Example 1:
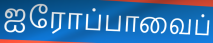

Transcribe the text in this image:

ஐரோப்பாவைப்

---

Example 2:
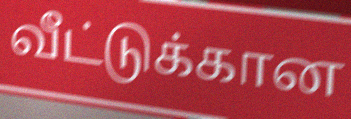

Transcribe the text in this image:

வீட்டுக்கான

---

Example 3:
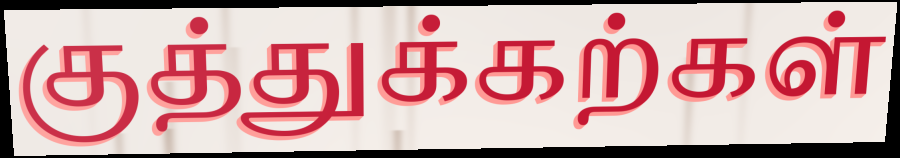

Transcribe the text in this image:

குத்துக்கற்கள்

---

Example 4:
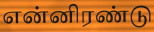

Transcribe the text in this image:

என்னிரண்டு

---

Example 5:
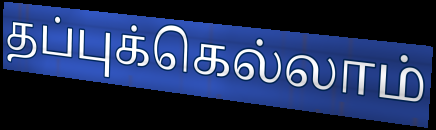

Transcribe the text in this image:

தப்புக்கெல்லாம்